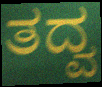
ತದ್ವ